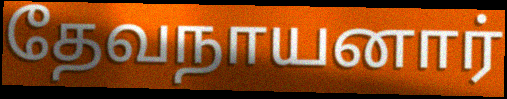
தேவநாயனார்